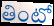
తింటో